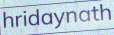
hridaynath